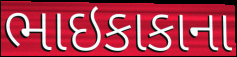
ભાઇકાકાના